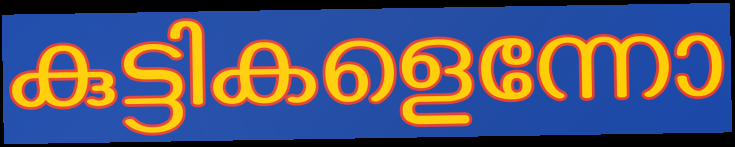
കുട്ടികളെന്നോ